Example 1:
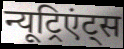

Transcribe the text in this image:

न्यूट्रिएंट्स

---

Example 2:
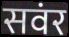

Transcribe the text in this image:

सवंर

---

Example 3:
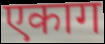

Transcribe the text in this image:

एकाग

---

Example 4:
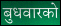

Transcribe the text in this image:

बुधवारको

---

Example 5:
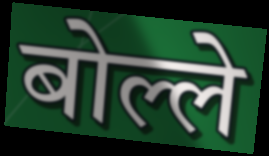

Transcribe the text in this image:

बोल्ले